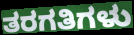
ತರಗತಿಗಳು